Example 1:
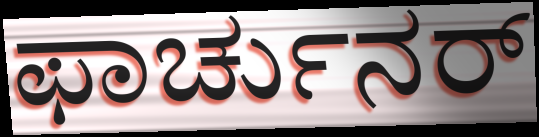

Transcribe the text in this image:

ಫಾರ್ಚುನರ್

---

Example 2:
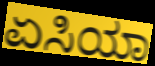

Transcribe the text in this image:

ಏಸಿಯಾ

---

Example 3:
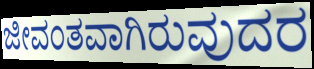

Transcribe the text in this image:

ಜೀವಂತವಾಗಿರುವುದರ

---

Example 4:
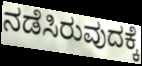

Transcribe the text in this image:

ನಡೆಸಿರುವುದಕ್ಕೆ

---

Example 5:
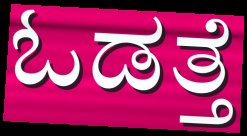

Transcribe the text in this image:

ಓಡತ್ತೆ